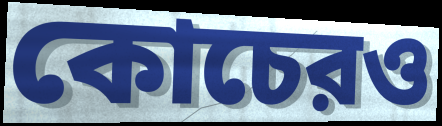
কোচেরও